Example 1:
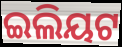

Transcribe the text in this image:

ଇଲିୟଟ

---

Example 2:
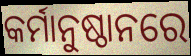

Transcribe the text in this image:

କର୍ମାନୁଷ୍ଠାନରେ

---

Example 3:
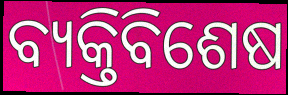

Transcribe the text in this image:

ବ୍ୟକ୍ତିବିଶେଷ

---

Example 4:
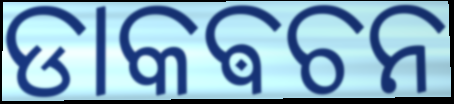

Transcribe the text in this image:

ଡାକଵଚନ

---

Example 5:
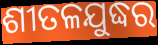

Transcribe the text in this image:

ଶୀତଳଯୁଦ୍ଧର